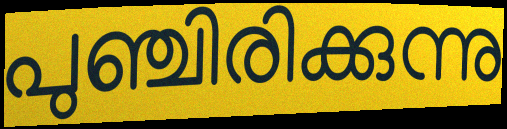
പുഞ്ചിരിക്കുന്നു